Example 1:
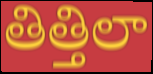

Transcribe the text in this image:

తిత్తిలా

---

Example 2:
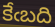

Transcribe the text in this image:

కేఁబది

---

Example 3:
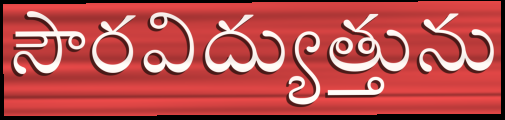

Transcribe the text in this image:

సౌరవిద్యుత్తును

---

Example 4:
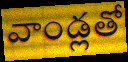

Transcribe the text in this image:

వాండ్లతో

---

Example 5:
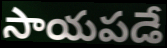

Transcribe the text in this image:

సాయపడే